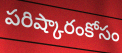
పరిష్కారంకోసం